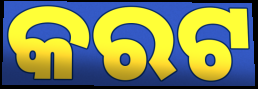
କରଟ